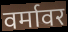
वर्मावर